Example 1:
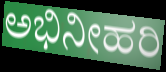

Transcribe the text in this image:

ಅಭಿನೀಹರಿ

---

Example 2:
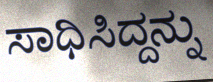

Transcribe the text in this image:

ಸಾಧಿಸಿದ್ದನ್ನು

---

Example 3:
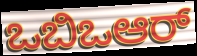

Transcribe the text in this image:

ಒಬಿಒಆರ್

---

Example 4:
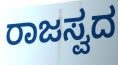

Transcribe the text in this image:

ರಾಜಸ್ವದ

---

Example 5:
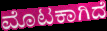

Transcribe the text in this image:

ಮೊಟಕಾಗಿದೆ